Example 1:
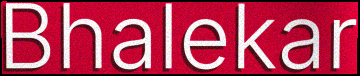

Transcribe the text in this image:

Bhalekar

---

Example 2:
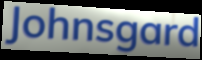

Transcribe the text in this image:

Johnsgard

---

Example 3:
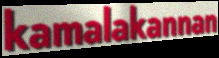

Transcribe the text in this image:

kamalakannan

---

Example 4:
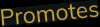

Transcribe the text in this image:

Promotes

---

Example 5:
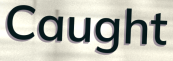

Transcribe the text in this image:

Caught